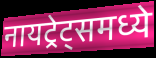
नायट्रेट्समध्ये